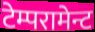
टेम्परामेन्ट